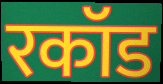
रकॉड